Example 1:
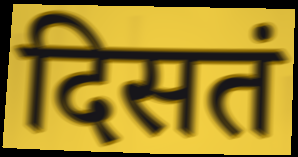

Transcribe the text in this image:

दिसतं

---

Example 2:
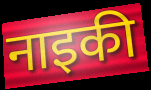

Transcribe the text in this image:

नाइकी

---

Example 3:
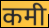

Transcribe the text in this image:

कमी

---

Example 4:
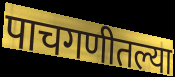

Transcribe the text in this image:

पाचगणीतल्या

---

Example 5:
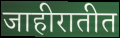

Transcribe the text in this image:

जाहीरातीत